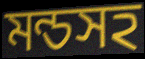
মন্ডসহ